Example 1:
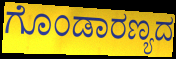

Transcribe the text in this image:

ಗೊಂಡಾರಣ್ಯದ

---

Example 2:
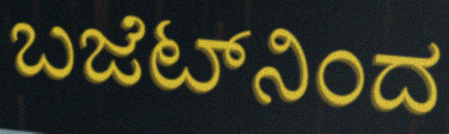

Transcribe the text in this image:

ಬಜೆಟ್‌ನಿಂದ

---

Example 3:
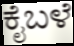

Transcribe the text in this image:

ಕೈಬಳೆ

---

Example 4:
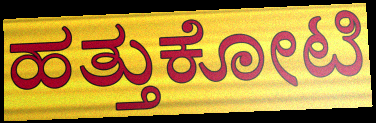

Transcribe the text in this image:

ಹತ್ತುಕೋಟಿ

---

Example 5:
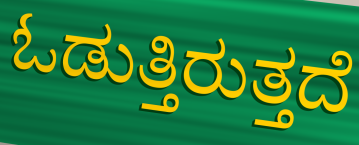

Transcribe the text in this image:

ಓಡುತ್ತಿರುತ್ತದೆ